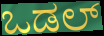
ಒಡಲ್